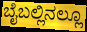
ಬೈಬಲ್ಲಿನಲ್ಲೂ